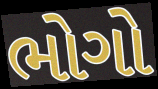
ભોગો